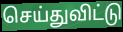
செய்துவிட்டு